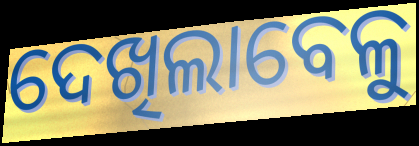
ଦେଖିଲାବେଳୁ